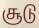
சூடு